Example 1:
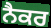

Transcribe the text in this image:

ਨੈਕਰ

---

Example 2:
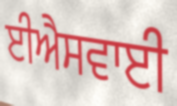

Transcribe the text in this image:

ਈਐਸਵਾਈ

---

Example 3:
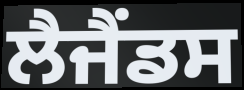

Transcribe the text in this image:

ਲੈਜੈਂਡਸ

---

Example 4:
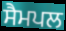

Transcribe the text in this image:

ਸੈਮਪਲ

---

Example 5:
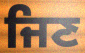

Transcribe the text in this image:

ਜਿਣ